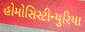
હોમોસિસ્ટીન્યુરિયા